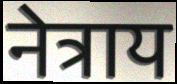
नेत्राय